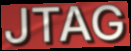
JTAG